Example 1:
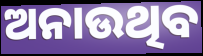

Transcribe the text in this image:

ଅନାଉଥିବ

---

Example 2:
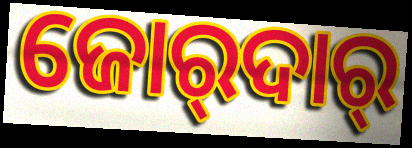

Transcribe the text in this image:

ଜୋର୍‍ଦାର୍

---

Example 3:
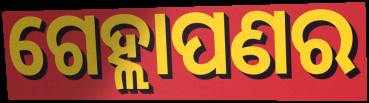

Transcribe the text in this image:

ଗେହ୍ଲାପଣର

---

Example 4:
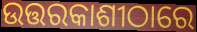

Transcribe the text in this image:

ଉତ୍ତରକାଶୀଠାରେ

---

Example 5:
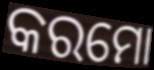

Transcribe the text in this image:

କରମୋ